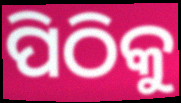
ପିଠିକୁ